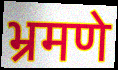
भ्रमणे